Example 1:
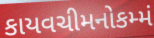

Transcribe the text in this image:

કાયવચીમનોકમ્મં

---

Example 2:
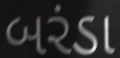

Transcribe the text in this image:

બરંડા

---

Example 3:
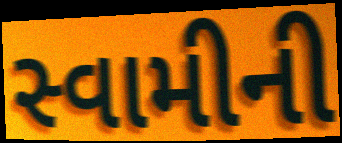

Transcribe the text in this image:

સ્વામીની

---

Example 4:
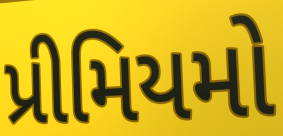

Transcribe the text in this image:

પ્રીમિયમો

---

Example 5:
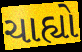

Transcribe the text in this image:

ચાહ્યો